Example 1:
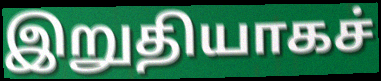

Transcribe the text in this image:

இறுதியாகச்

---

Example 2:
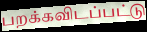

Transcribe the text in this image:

பறக்கவிடப்பட்டு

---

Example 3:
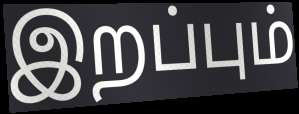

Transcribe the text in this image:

இறப்பும்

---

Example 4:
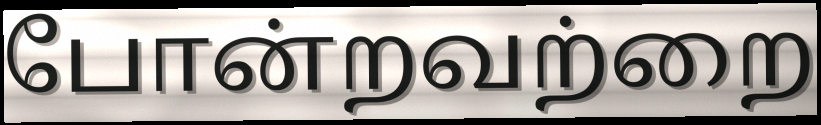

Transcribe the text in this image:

போன்றவற்றை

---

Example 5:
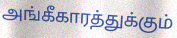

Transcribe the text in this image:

அங்கீகாரத்துக்கும்